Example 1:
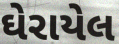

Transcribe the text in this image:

ઘેરાયેલ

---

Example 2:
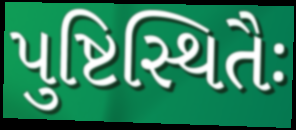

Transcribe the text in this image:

પુષ્ટિસ્થિતૈઃ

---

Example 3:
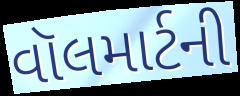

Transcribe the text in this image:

વૉલમાર્ટની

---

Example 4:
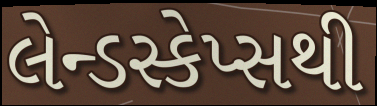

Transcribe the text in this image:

લેન્ડસ્કેપ્સથી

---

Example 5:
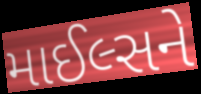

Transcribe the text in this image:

માઈલ્સને